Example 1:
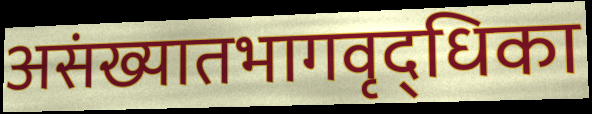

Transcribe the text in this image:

असंख्यातभागवृद्धिका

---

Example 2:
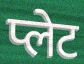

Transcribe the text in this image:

प्‍लेट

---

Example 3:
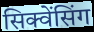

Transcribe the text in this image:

सिक्‍वेंसिंग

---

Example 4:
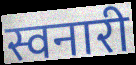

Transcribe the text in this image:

स्वनारी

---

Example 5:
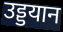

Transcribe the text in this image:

उड्डयान